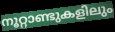
നൂറ്റാണ്ടുകളിലും